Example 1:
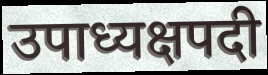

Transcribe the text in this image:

उपाध्यक्षपदी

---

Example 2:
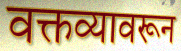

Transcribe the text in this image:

वक्तव्यावरून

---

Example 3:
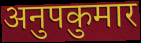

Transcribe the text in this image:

अनुपकुमार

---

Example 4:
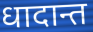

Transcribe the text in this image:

धादान्त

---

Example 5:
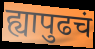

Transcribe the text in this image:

ह्यापुढचं